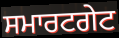
ਸਮਾਰਟਗੇਟ